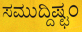
ಸಮುದ್ದಿಷ್ಟಂ